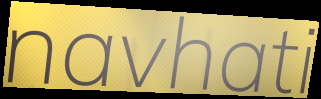
navhati